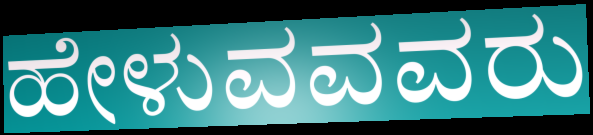
ಹೇಳುವವವರು